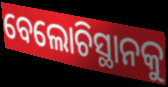
ବେଲୋଚିସ୍ଥାନକୁ